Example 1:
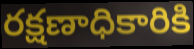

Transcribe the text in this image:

రక్షణాధికారికి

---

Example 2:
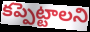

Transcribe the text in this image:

కప్పెట్టాలని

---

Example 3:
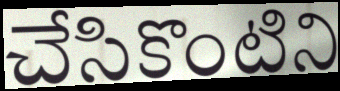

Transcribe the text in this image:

చేసికొంటిని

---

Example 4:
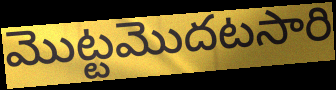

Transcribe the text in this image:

మొట్టమొదటసారి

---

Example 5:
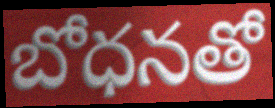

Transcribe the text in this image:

బోధనతో